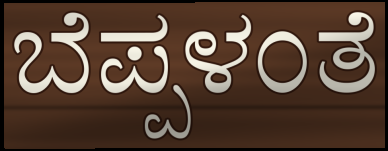
ಬೆಪ್ಪಳಂತೆ